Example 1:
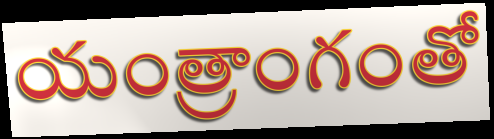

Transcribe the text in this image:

యంత్రాంగంతో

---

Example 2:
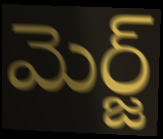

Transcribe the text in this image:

మెర్జ్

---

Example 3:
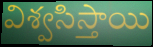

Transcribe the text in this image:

విశ్వసిస్తాయి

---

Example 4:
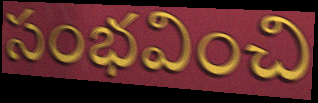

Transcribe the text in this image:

సంభవించి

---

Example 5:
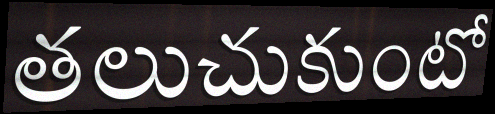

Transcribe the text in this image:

తలుచుకుంటో